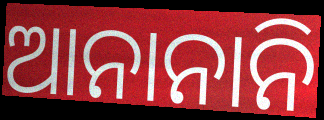
ଆନାନାନି